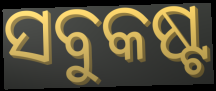
ସବୁକଷ୍ଟ